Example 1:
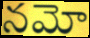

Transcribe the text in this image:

నమో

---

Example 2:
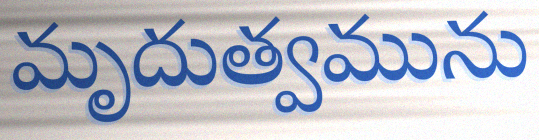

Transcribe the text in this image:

మృదుత్వమును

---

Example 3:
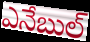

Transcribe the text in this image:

ఎనేబుల్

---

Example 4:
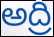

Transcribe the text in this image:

అద్రి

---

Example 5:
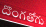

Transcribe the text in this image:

దొంగతోగు